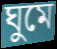
ঘুমে